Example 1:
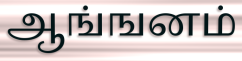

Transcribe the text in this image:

ஆங்ஙனம்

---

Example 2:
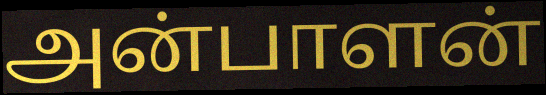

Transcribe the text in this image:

அன்பாளன்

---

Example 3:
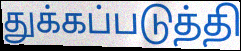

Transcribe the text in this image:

துக்கப்படுத்தி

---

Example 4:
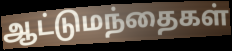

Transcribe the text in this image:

ஆட்டுமந்தைகள்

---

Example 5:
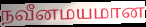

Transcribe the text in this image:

நவீனமயமான